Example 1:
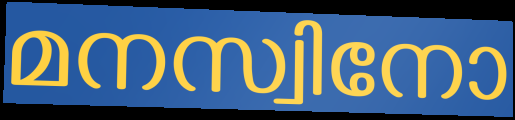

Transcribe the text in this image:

മനസ്വിനോ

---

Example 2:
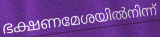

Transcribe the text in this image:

ഭക്ഷണമേശയിൽനിന്ന്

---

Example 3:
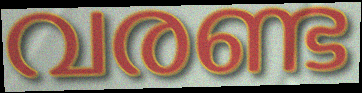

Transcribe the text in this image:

വരണ്ട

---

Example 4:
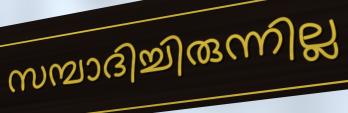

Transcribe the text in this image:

സമ്പാദിച്ചിരുന്നില്ല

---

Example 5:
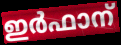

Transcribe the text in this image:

ഇർഫാന്